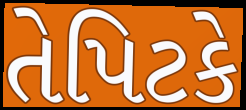
તેપિટકે